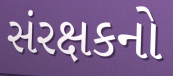
સંરક્ષકનો